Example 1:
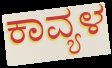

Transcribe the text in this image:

ಕಾವ್ಯಳ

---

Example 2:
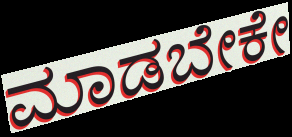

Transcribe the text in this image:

ಮಾಡಬೇಕೇ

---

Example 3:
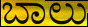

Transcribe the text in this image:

ಬಾಲು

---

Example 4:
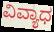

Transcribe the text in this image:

ವಿವ್ಯಾಧ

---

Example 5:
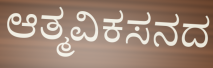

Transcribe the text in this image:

ಆತ್ಮವಿಕಸನದ